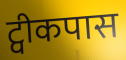
ट्वीकपास